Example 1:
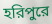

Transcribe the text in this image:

হরিপুরে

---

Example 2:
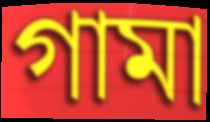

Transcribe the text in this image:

গামা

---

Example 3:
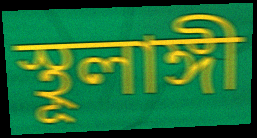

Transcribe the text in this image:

স্থূলাঙ্গী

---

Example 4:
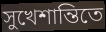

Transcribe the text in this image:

সুখেশান্তিতে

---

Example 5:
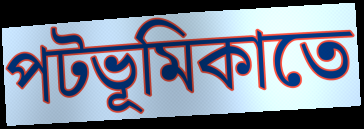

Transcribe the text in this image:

পটভূমিকাতে